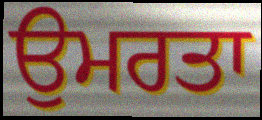
ਉਮਰਤਾ